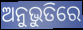
ଅନୁଭୁତିରେ